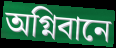
অগ্নিবানে